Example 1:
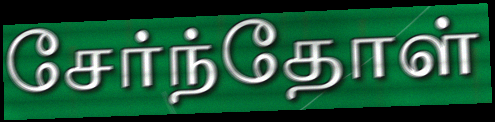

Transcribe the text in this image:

சேர்ந்தோள்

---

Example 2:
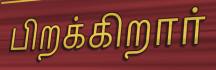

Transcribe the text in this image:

பிறக்கிறார்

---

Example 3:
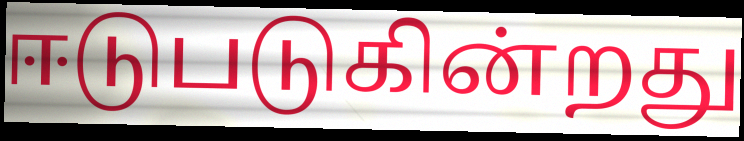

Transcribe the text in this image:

ஈடுபடுகின்றது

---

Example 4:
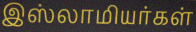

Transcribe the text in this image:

இஸ்லாமியர்கள்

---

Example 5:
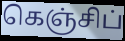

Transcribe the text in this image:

கெஞ்சிப்